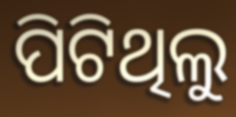
ପିଟିଥିଲୁ